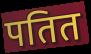
पतित